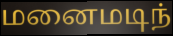
மனைமடிந்